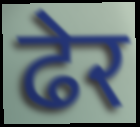
ढेर